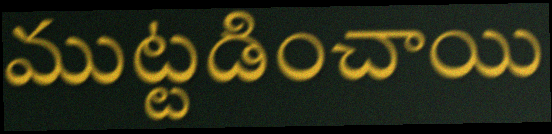
ముట్టడించాయి